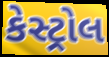
કેસ્ટ્રોલ